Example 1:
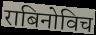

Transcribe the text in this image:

राबिनोविच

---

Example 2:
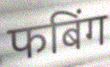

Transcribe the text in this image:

फबिंग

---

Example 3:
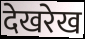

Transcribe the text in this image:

देखरेख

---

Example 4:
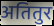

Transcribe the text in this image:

अतितुर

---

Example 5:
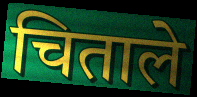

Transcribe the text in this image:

चिताले